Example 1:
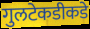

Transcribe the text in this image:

गुलटेकडीकडे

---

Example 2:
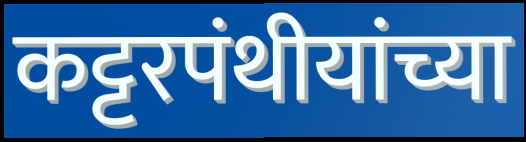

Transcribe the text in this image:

कट्टरपंथीयांच्या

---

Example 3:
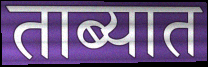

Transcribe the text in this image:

ताब्यात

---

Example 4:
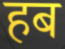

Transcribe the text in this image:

हब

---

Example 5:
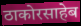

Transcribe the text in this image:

ठाकोरसाहेब